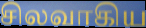
சிலவாகிய